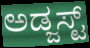
ಅಡ್ಜಸ್ಟ್